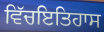
ਵਿੱਚਇਤਿਹਾਸ